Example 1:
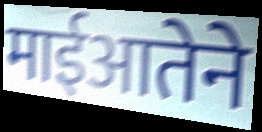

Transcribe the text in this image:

माईआतेने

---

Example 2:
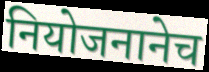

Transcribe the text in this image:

नियोजनानेच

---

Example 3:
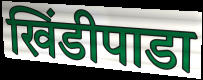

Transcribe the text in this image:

खिंडीपाडा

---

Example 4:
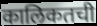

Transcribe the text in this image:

कालिकतची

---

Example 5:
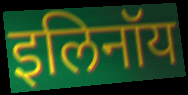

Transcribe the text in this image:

इलिनॉय